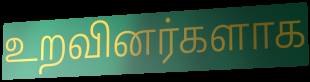
உறவினர்களாக